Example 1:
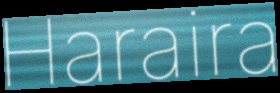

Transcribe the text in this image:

Haraira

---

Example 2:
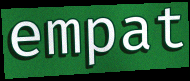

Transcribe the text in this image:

empat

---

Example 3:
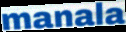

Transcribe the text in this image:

manala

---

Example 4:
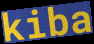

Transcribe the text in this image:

kiba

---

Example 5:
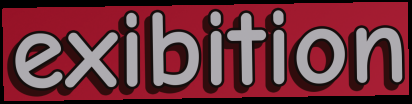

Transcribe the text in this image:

exibition